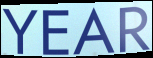
YEAR